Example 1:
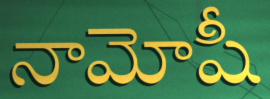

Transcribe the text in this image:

నామోషీ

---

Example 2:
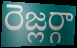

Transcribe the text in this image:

రెజ్లర్గా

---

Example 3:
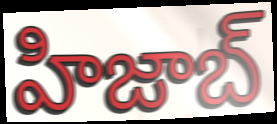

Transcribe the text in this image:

హిజాబ్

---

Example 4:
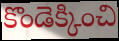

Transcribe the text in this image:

కొండెక్కించి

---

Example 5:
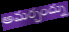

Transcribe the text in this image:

అమర్చంద్ను